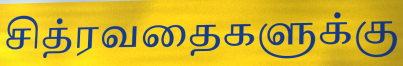
சித்ரவதைகளுக்கு